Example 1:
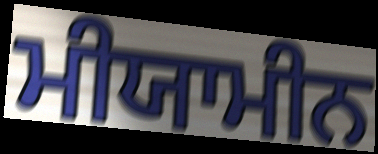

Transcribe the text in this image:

ਮੀਯਾਮੀਨ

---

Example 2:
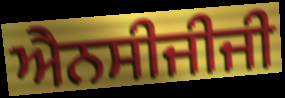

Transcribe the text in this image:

ਐਨਸੀਜੀਜੀ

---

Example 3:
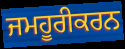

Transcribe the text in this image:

ਜਮਹੂਰੀਕਰਨ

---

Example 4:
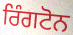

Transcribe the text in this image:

ਰਿੰਗਟੋਨ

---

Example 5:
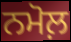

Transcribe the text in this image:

ਨਮੋਲ਼